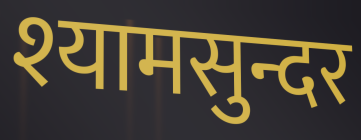
श्यामसुन्दर